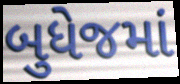
બુધેજમાં